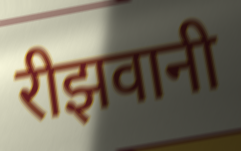
रीझवानी